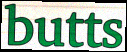
butts